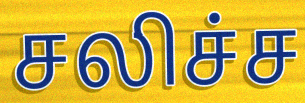
சலிச்ச